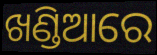
ଖଣ୍ଡିଆରେ